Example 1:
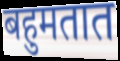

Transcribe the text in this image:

बहुमतात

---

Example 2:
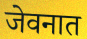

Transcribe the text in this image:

जेवनात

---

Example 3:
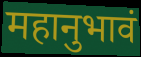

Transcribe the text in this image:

महानुभावं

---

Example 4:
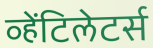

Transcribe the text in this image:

व्हेंटिलेटर्स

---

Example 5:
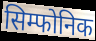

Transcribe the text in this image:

सिम्फोनिक